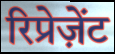
रिप्रेज़ेंट